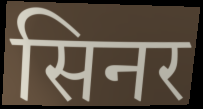
सिनर